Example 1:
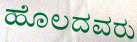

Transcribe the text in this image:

ಹೊಲದವರು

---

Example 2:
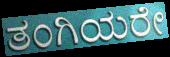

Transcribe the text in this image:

ತಂಗಿಯರೇ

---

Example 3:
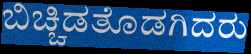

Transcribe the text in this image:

ಬಿಚ್ಚಿಡತೊಡಗಿದರು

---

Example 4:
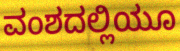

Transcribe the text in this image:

ವಂಶದಲ್ಲಿಯೂ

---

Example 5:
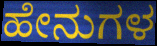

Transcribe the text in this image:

ಹೇನುಗಳ